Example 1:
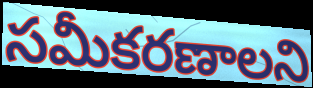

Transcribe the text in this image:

సమీకరణాలని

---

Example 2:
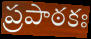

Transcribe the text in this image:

ప్రపాఠకః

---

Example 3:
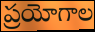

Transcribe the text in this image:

ప్రయోగాల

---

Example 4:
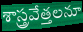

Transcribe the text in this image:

శాస్త్రవేత్తలనూ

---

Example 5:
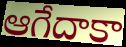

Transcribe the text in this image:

ఆగేదాకా